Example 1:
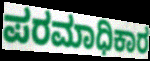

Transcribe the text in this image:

ಪರಮಾಧಿಕಾರ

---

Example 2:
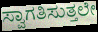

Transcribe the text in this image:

ಸ್ವಾಗತಿಸುತ್ತಲೇ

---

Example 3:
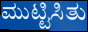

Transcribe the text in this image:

ಮುಟ್ಟಿಸಿತು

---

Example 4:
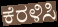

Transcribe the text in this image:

ಕೆರಳಿಸಿ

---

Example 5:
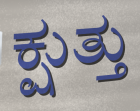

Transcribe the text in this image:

ಕ್ಷುತ್ತು